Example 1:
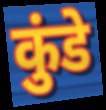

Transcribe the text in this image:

कुंडे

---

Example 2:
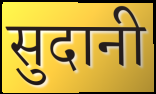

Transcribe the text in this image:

सुदानी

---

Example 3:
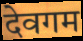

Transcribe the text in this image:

देवगम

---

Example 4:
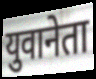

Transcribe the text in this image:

युवानेता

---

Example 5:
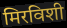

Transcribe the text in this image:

मिरविशी